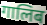
गालिब